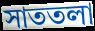
সাততলা